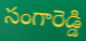
సంగారెడ్డి